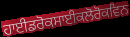
ਹਾਈਡਰੋਕਸਾਈਕਲੋਰੋਕਵਿਨ